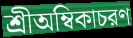
শ্রীঅম্বিকাচরণ